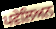
ਪਵੇਲਿਅਨ